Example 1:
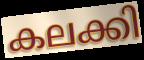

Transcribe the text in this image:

കലക്കി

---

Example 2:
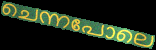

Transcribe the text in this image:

ചെന്നപോലെ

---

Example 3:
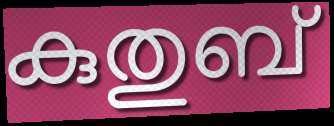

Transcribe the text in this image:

കുതുബ്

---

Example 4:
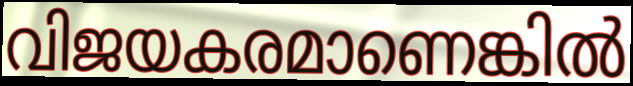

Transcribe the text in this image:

വിജയകരമാണെങ്കിൽ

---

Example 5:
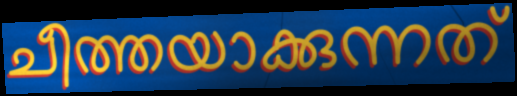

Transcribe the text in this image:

ചീത്തയാക്കുന്നത്